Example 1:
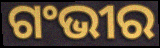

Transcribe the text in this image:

ଗଂଭୀର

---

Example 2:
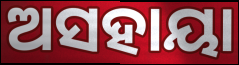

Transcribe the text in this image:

ଅସହାୟା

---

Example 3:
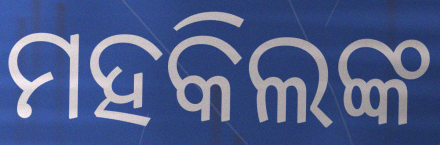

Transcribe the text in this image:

ମହକିଲଙ୍କ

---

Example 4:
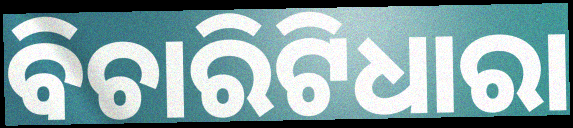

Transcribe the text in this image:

ବିଚାରିଟିଧାରା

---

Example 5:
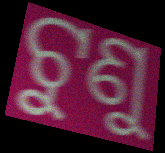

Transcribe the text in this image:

ଟୁଣୁ